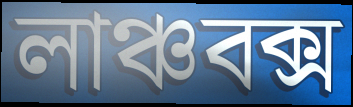
লাঞ্চবক্স